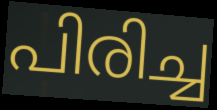
പിരിച്ച